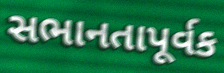
સભાનતાપૂર્વક